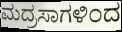
ಮದ್ರಸಾಗಳಿಂದ